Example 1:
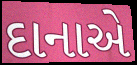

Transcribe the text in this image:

દાનાએ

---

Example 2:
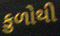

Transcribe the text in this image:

કુળોથી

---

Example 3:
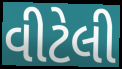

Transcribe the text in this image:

વીટેલી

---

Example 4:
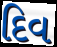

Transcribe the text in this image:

દિવ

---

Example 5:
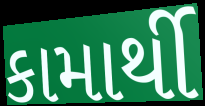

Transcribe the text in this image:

કામાર્થી